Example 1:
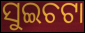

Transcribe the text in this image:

ସୁଇଚଟା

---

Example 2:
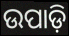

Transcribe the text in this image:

ଉପାଡ଼ି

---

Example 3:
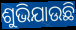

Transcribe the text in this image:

ଶୁଭିଯାଉଛି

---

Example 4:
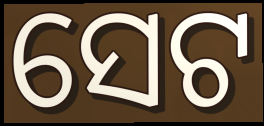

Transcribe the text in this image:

ସେଟ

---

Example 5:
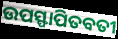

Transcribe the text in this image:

ଉପସ୍ଫାପିତବତୀ